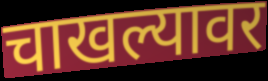
चाखल्यावर